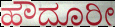
ಹೌದೂರೀ